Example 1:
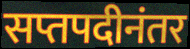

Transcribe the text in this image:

सप्तपदीनंतर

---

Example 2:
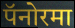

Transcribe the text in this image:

पॅनोरमा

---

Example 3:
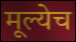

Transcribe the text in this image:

मूल्येच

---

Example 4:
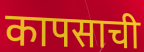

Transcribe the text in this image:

कापसाची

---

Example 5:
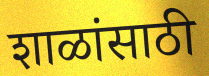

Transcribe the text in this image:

शाळांसाठी